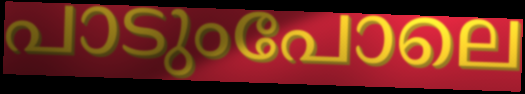
പാടുംപോലെ